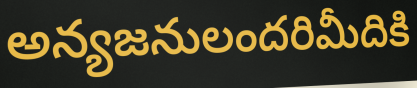
అన్యజనులందరిమీదికి